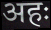
अहः